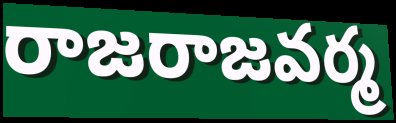
రాజరాజవర్మ